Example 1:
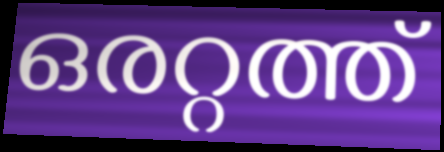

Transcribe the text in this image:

ഒരറ്റത്ത്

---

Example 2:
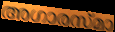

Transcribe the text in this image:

അഗാരസ്മാ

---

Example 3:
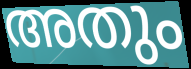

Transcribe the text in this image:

അതും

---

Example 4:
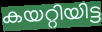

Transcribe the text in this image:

കയറ്റിയിട്ട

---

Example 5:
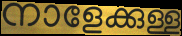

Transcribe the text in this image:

നാളേക്കുള്ള